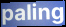
paling